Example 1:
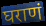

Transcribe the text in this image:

घराणं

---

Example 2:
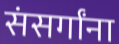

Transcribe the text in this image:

संसर्गांना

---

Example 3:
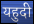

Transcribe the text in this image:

यहुदी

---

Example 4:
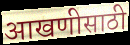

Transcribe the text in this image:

आखणीसाठी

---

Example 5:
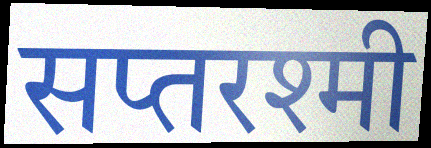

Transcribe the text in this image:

सप्तरश्मी